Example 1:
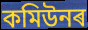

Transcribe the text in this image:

কমিউনৰ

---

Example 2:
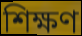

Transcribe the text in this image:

শিক্ষণ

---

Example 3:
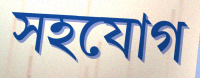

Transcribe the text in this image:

সহযোগ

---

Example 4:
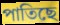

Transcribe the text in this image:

পাতিছে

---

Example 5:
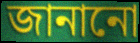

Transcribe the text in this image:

জানানো